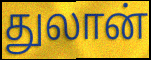
துலான்